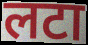
लटा